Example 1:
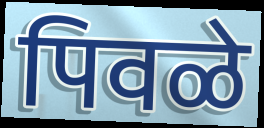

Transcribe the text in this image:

पिवळे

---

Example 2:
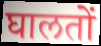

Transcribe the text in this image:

घालतों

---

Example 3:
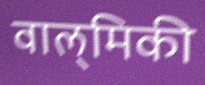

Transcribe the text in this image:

वाल्मिकी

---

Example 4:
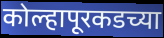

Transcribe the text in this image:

कोल्हापूरकडच्या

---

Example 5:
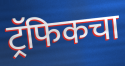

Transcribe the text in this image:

ट्रॅफिकचा